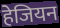
हेजियन